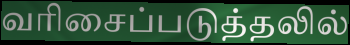
வரிசைப்படுத்தலில்